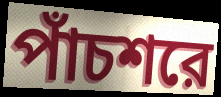
পাঁচশরে